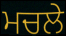
ਮਚਲੇ